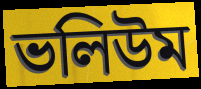
ভলিউম